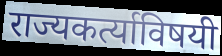
राज्यकर्त्याविषयी